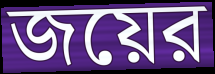
জয়ের